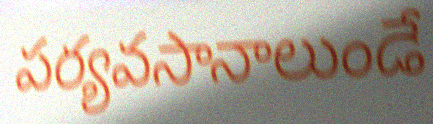
పర్యవసానాలుండే